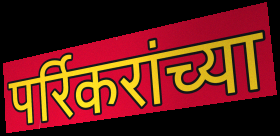
पर्रिकरांच्या